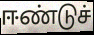
ஈண்டுச்